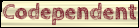
Codependent